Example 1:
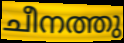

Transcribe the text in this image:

ചീനത്തു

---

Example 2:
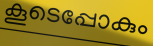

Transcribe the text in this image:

കൂടെപ്പോകും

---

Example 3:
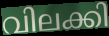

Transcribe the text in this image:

വിലക്കി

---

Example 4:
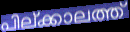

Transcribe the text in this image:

പില്ക്കാലത്ത്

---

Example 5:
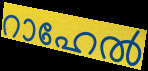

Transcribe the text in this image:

റാഹേൽ